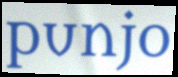
punjo